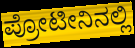
ಪ್ರೋಟೀನಿನಲ್ಲಿ